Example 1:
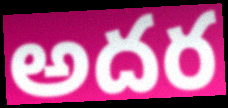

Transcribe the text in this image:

అదర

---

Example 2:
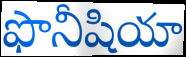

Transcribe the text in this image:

ఫొనీషియా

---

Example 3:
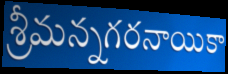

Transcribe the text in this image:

శ్రీమన్నగరనాయికా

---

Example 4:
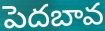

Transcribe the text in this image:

పెదబావ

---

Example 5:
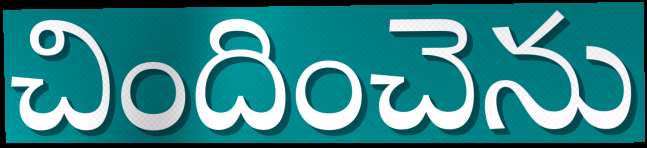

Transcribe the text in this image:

చిందించెను